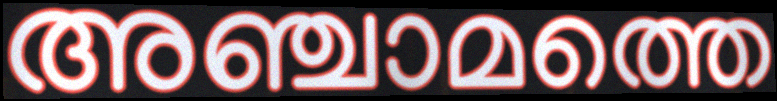
അഞ്ചാമത്തെ